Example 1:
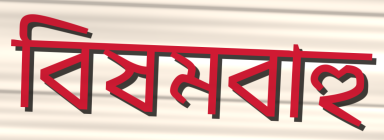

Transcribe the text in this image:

বিষমবাহু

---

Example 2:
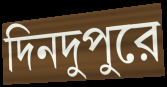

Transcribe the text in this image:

দিনদুপুরে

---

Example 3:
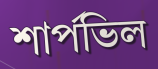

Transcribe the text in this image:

শার্পভিল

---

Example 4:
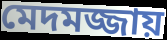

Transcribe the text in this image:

মেদমজ্জায়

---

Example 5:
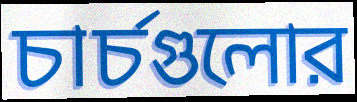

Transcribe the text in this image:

চার্চগুলোর